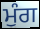
ਮੁੰਗ